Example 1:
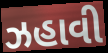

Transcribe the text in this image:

ઝહાવી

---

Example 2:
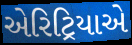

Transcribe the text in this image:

એરિટ્રિયાએ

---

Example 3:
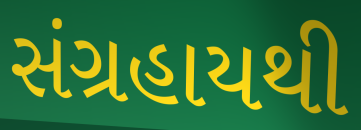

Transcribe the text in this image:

સંગ્રહાયથી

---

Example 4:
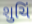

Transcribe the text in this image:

શુચિં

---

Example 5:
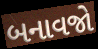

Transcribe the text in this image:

બનાવજો